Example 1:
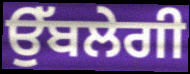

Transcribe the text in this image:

ਉੱਬਲੇਗੀ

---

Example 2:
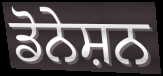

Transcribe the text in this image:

ਡੋਨੇਸ਼ਨ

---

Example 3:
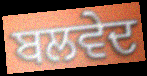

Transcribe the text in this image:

ਬਲਵੇਦ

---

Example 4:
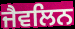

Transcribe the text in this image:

ਜੈਵਲਿਨ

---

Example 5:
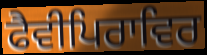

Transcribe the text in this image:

ਫੈਵੀਪਿਰਾਵਿਰ